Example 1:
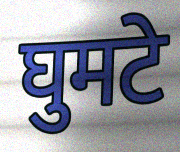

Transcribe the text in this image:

घुमटे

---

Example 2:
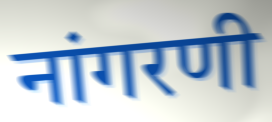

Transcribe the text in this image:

नांगरणी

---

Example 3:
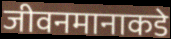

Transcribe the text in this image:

जीवनमानाकडे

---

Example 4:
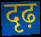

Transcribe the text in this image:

दृढ़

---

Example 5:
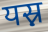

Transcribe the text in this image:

यस्न